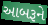
આબરૂને